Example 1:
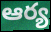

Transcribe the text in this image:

ఆర్య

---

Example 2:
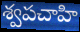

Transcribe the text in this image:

శ్వపచాహి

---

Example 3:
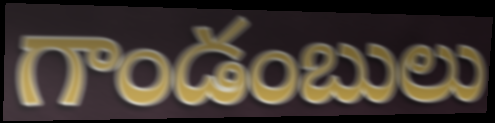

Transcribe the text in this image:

గాండంబులు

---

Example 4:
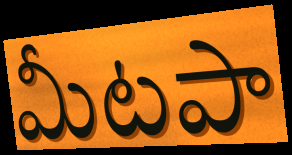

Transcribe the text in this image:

మీటపా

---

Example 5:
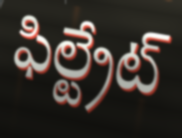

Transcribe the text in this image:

ఫిల్ట్రేట్